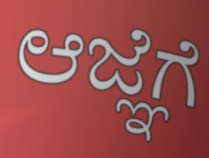
ಆಜ್ಞೆಗೆ